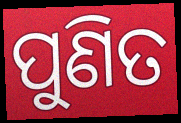
ପୁଣିତ